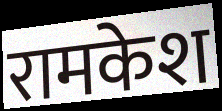
रामकेश